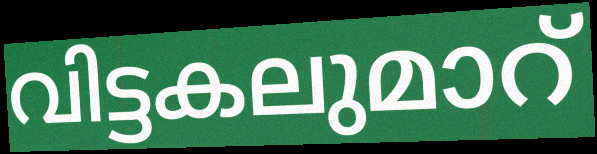
വിട്ടകലുമാറ്